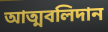
আত্মবলিদান